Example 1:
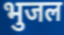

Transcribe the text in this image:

भुजल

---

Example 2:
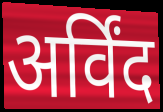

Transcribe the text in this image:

अर्विंद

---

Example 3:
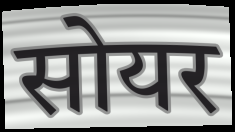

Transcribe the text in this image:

सोयर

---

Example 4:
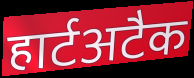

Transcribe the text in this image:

हार्टअटैक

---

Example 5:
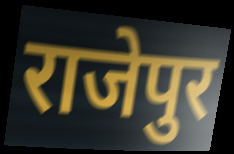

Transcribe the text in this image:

राजेपुर